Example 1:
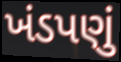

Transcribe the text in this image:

ખંડપણું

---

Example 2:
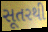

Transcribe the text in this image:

સૂતરથી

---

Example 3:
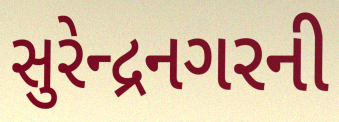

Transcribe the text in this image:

સુરેન્દ્રનગરની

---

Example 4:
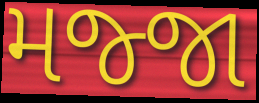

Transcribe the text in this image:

મજ્જા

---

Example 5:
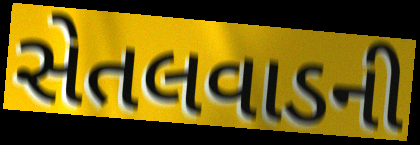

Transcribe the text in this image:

સેતલવાડની